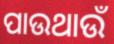
ପାଉଥାଉଁ